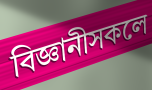
বিজ্ঞানীসকলে